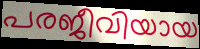
പരജീവിയായ